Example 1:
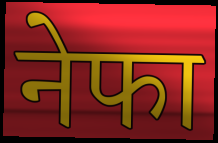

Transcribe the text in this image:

नेफा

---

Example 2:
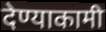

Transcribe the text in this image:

देण्याकामी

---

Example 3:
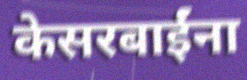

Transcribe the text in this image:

केसरबाईंना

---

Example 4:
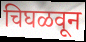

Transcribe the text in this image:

चिघळवून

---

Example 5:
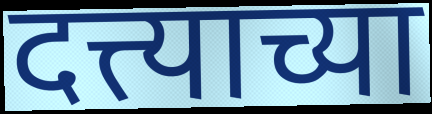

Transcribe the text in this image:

दत्त्याच्या